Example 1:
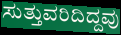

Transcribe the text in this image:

ಸುತ್ತುವರಿದಿದ್ದವು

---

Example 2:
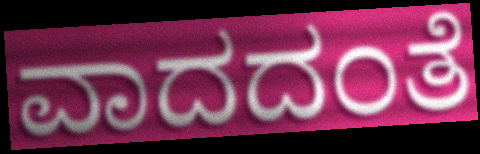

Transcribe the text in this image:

ವಾದದಂತೆ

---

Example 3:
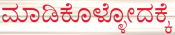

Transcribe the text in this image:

ಮಾಡಿಕೊಳ್ಳೋದಕ್ಕೆ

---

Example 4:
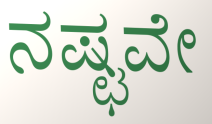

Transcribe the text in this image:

ನಷ್ಟವೇ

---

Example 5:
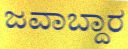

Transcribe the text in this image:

ಜವಾಬ್ದಾರ